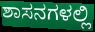
ಶಾಸನಗಳಲ್ಲಿ